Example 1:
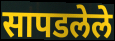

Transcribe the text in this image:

सापडलेले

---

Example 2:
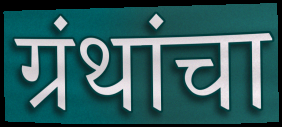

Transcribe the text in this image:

ग्रंथांचा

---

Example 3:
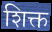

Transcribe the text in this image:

शिक्त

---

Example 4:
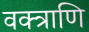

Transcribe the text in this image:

वक्त्राणि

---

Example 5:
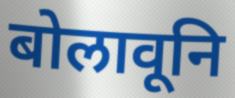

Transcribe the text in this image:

बोलावूनि